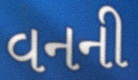
વનની